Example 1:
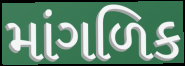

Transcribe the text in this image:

માંગળિક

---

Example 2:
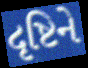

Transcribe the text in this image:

દૃષ્ટિને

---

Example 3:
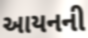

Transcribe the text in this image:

આયનની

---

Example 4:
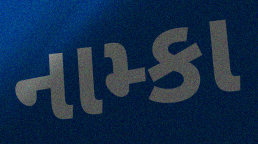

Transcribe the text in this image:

નામ્કા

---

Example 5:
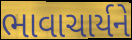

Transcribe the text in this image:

ભાવાચાર્યને